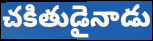
చకితుడైనాడు